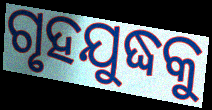
ଗୃହଯୁଦ୍ଧକୁ